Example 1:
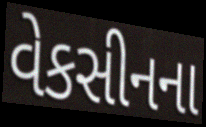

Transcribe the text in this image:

વેકસીનના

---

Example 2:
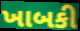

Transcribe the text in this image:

ખાબકી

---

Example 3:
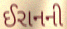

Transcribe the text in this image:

ઈરાનની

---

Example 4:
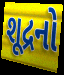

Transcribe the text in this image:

શૂદ્રનો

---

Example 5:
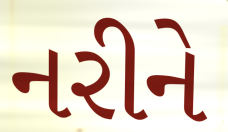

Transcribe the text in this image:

નરીને